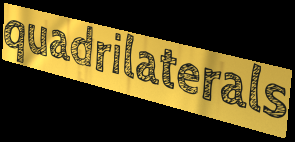
quadrilaterals